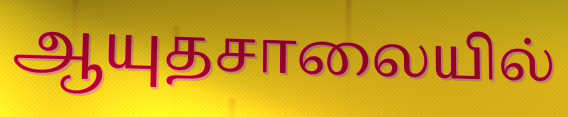
ஆயுதசாலையில்